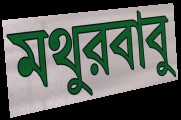
মথুরবাবু